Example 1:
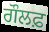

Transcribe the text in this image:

ਗੌਲਫ਼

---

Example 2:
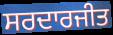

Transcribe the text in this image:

ਸਰਦਾਰਜੀਤ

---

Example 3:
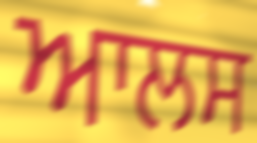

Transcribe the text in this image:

ਆਲਸ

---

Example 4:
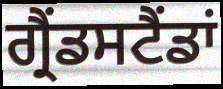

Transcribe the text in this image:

ਗ੍ਰੈਂਡਸਟੈਂਡਾਂ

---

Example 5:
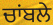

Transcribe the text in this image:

ਚਾਂਬਲੇ